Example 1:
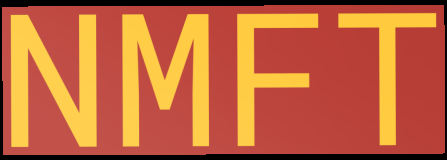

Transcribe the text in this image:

NMFT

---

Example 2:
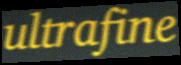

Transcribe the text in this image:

ultrafine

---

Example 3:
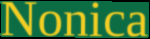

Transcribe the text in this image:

Nonica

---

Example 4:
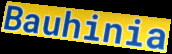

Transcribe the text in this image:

Bauhinia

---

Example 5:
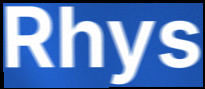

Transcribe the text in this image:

Rhys